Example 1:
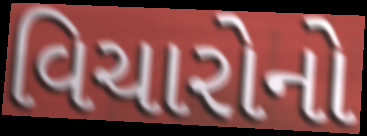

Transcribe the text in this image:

વિચારોનો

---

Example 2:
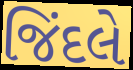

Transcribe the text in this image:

જિંદલે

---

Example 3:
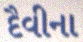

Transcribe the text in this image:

દૈવીના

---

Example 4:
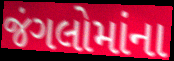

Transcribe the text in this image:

જંગલોમાંના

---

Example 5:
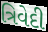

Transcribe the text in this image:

ત્રિવેદી